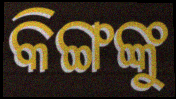
କିଙ୍ଗଙ୍କୁ